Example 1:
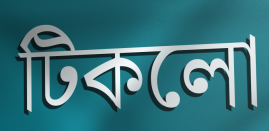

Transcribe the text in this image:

টিকলো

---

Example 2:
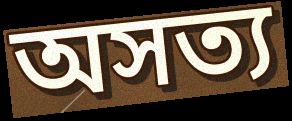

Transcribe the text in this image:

অসত্য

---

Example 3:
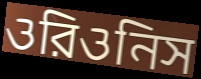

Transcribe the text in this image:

ওরিওনিস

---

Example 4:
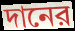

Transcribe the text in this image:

দানের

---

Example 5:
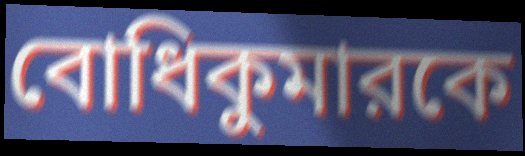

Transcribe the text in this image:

বোধিকুমারকে